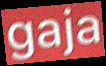
gaja